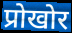
प्रोखोर